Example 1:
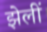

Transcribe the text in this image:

झेलीं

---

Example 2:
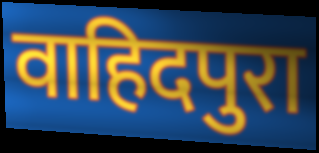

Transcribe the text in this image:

वाहिदपुरा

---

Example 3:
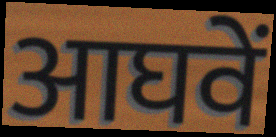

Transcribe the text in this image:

आघवें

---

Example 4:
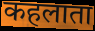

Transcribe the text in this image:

कहलाता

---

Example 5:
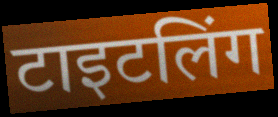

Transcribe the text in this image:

टाइटलिंग